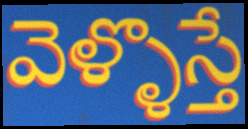
వెళ్ళొస్తే